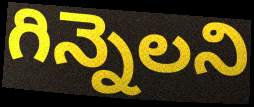
గిన్నెలని